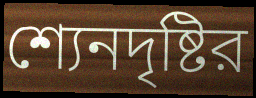
শ্যেনদৃষ্টির